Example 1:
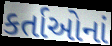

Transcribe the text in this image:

કર્તાઓનાં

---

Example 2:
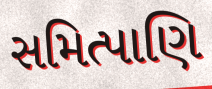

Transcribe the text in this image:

સમિત્પાણિ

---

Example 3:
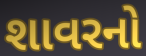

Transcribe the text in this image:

શાવરનો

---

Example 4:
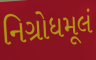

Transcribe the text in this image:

નિગ્રોધમૂલં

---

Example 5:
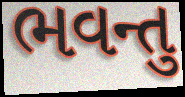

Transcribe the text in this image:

ભવન્તુ